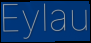
Eylau